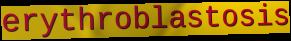
erythroblastosis